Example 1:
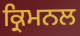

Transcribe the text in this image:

ਕ੍ਰਿਮਨਲ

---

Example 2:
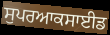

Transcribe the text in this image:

ਸੁਪਰਆਕਸਾਈਡ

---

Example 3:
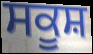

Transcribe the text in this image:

ਸਕੂਸ਼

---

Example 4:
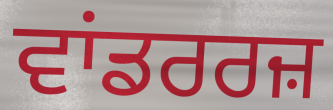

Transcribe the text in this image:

ਵਾਂਡਰਰਜ਼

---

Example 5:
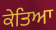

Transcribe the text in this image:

ਕੇਤਿਆ